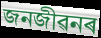
জনজীৱনৰ